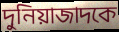
দুনিয়াজাদকে